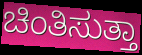
ಚಿಂತಿಸುತ್ತಾ